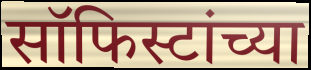
सॉफिस्टांच्या